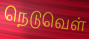
நெடுவெள்